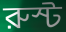
রুস্ট